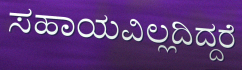
ಸಹಾಯವಿಲ್ಲದಿದ್ದರೆ